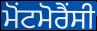
ਮੋਂਟਮੋਰੈਂਸੀ